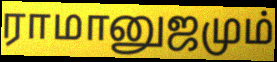
ராமானுஜமும்